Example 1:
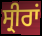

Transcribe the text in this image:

ਸ੍ਰੀਰਾਂ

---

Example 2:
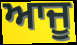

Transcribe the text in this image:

ਆਜੂ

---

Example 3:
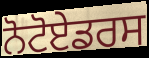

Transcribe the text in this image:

ਨੋਟੋਏਡਰਸ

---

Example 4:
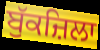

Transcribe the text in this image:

ਬੁੱਕਜ਼ਿਲਾ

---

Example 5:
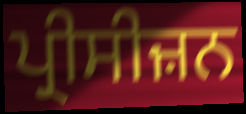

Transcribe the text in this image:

ਪ੍ਰੀਸੀਜ਼ਨ